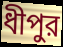
ধীপুর